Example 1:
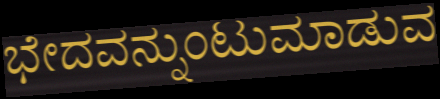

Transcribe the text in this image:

ಭೇದವನ್ನುಂಟುಮಾಡುವ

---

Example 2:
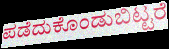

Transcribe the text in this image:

ಪಡೆದುಕೊಂಡುಬಿಟ್ಟರೆ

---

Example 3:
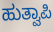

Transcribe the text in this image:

ಹುತ್ವಾಪಿ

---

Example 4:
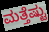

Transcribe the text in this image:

ಮತ್ತೆಷ್ಟು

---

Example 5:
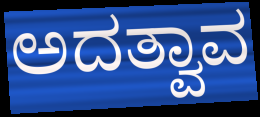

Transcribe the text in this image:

ಅದತ್ವಾವ